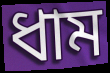
ধাম